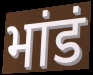
भांडं